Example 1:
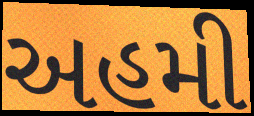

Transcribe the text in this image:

અહમી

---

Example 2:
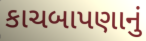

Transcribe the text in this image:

કાચબાપણાનું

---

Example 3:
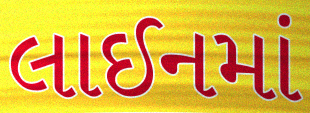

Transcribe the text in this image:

લાઈનમાં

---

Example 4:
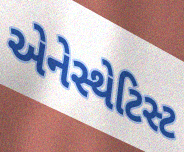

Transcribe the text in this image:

એનેસ્થેટિસ્ટ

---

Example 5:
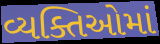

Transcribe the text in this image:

વ્યક્તિઓમાં